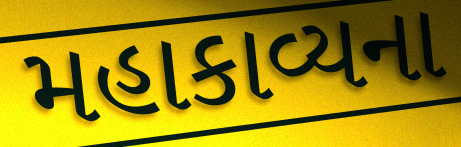
મહાકાવ્યના